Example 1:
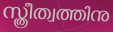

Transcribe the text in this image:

സ്ത്രീത്വത്തിനു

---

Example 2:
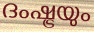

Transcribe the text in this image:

ദംഷ്ട്രയും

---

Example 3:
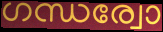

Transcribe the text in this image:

ഗന്ധര്വോ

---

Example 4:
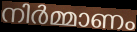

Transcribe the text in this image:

നിർമ്മാണം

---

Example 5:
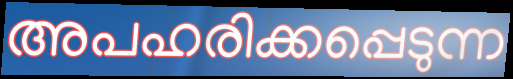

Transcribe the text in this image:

അപഹരിക്കപ്പെടുന്ന